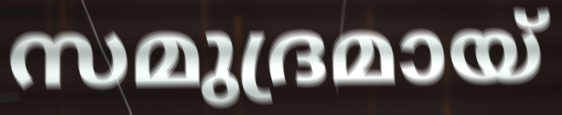
സമുദ്രമായ്